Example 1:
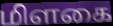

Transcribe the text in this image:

மிளகை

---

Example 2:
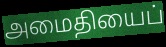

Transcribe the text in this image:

அமைதியைப்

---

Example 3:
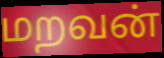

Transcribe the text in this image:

மறவன்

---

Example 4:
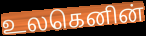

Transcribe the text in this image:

உலகெனின்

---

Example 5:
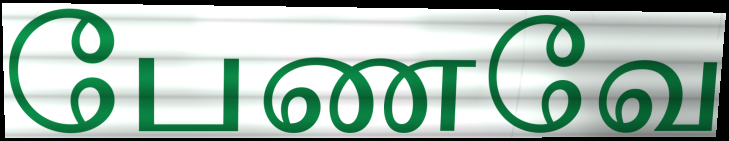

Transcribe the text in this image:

பேணவே